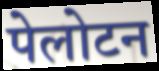
पेलोटन